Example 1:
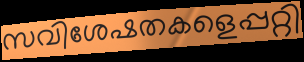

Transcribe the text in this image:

സവിശേഷതകളെപ്പറ്റി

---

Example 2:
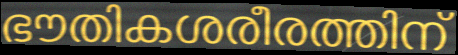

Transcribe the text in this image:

ഭൗതികശരീരത്തിന്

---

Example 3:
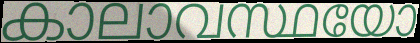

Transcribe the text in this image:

കാലാവസ്ഥയോ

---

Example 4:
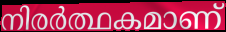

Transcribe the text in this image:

നിരർത്ഥകമാണ്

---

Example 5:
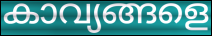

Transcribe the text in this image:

കാവ്യങ്ങളെ